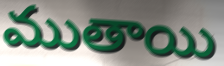
ముతాయి